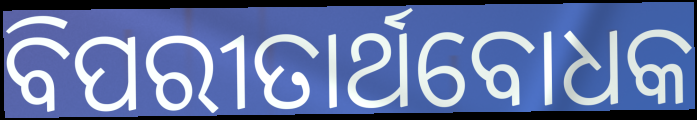
ବିପରୀତାର୍ଥବୋଧକ